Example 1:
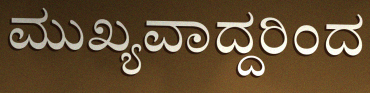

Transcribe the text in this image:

ಮುಖ್ಯವಾದ್ದರಿಂದ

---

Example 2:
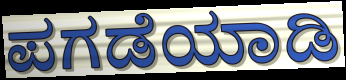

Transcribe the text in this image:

ಪಗಡೆಯಾಡಿ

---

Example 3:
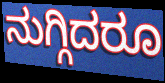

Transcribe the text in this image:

ನುಗ್ಗಿದರೂ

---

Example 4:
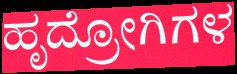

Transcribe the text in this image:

ಹೃದ್ರೋಗಿಗಳ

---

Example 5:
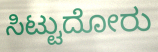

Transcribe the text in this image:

ಸಿಟ್ಟುದೋರು